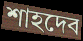
শাহদেব